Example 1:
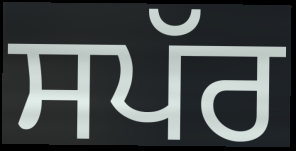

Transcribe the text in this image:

ਸਪੱਰ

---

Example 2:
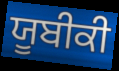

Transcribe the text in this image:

ਯੂਬੀਕੀ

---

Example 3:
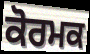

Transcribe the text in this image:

ਕੋਰਮਕ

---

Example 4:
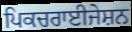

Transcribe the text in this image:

ਪਿਕਚਰਾਈਜੇਸ਼ਨ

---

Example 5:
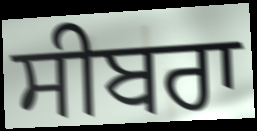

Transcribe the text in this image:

ਸੀਬਰਾ